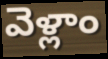
వెళ్లాం